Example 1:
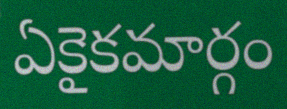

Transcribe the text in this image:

ఏకైకమార్గం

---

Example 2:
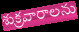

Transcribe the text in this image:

శుక్రవారాలను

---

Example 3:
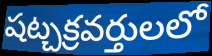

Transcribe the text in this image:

షట్చక్రవర్తులలో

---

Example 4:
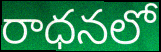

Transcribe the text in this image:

రాధనలో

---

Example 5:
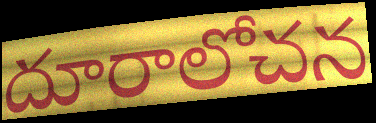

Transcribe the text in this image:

దూరాలోచన